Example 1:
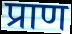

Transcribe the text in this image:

प्राण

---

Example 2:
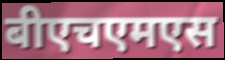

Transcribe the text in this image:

बीएचएमएस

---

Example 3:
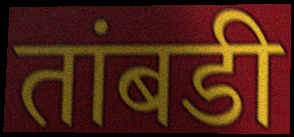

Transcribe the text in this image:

तांबडी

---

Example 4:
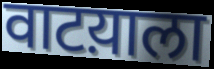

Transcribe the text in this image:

वाटय़ाला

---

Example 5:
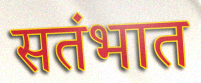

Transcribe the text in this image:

सतंभात